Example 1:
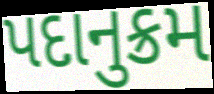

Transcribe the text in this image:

પદાનુક્રમ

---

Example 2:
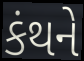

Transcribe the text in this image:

કંથને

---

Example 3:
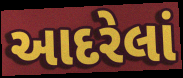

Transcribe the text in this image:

આદરેલાં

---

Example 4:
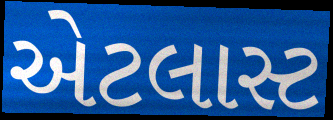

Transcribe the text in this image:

એટલાસ્ટ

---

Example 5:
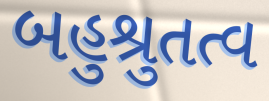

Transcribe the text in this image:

બહુશ્રુતત્વ